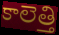
కాలెత్తి